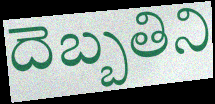
దెబ్బతిని